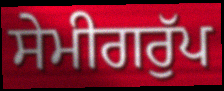
ਸੇਮੀਗਰੁੱਪ